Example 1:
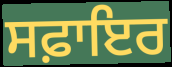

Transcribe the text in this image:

ਸਫ਼ਾਇਰ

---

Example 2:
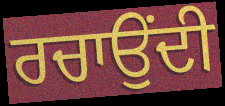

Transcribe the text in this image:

ਰਚਾਉਂਦੀ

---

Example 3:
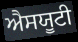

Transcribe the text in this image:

ਐਸਯੂਟੀ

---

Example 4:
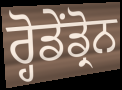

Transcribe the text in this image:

ਰ੍ਹੋਡੇਂਡ੍ਰੋਨ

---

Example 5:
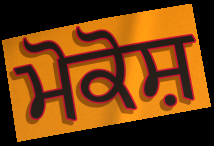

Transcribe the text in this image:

ਮੋਕੋਸ਼